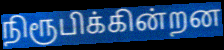
நிரூபிக்கின்றன